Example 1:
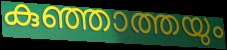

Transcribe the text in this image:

കുഞ്ഞാത്തയും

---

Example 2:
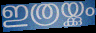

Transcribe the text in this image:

ഇത്രയ്ക്കും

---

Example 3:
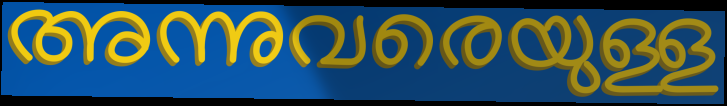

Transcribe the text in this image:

അന്നുവരെയുള്ള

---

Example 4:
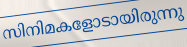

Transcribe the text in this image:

സിനിമകളോടായിരുന്നു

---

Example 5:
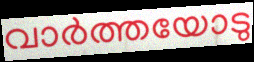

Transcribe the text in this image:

വാർത്തയോടു